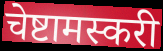
चेष्टामस्करी